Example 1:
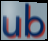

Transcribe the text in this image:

ub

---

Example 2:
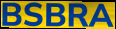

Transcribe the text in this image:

BSBRA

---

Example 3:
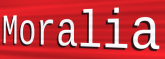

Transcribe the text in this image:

Moralia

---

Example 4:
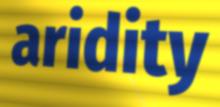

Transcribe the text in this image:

aridity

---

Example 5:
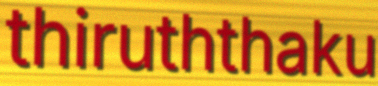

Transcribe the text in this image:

thiruththaku